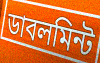
ডাবলমিন্ট